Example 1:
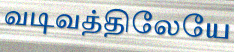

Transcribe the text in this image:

வடிவத்திலேயே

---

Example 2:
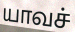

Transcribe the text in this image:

யாவச்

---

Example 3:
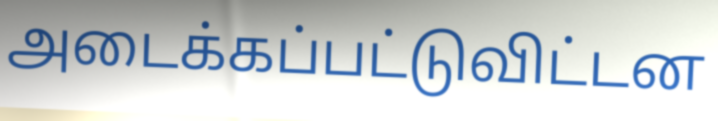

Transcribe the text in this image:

அடைக்கப்பட்டுவிட்டன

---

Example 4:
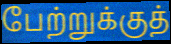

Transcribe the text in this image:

பேற்றுக்குத்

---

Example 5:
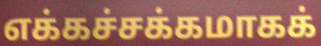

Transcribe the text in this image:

எக்கச்சக்கமாகக்